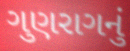
ગુણરાગનું